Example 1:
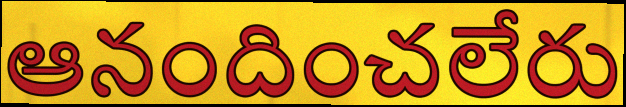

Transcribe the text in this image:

ఆనందించలేరు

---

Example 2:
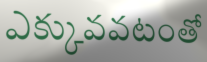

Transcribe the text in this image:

ఎక్కువవటంతో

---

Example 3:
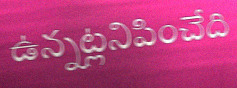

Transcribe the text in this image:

ఉన్నట్లనిపించేది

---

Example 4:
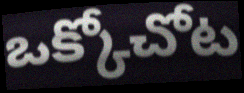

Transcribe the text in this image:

ఒక్కోచోట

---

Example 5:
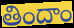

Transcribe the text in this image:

తిందాం